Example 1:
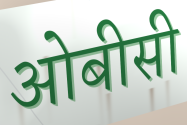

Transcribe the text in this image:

ओबीसी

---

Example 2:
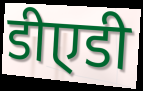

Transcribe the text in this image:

डीएडी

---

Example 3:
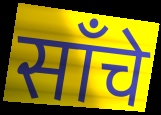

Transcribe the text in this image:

साँचे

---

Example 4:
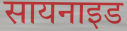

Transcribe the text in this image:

सायनाइड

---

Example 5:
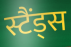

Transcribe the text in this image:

स्टैंड्स